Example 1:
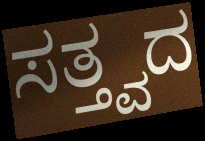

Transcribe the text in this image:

ಸತ್ತ್ವದ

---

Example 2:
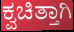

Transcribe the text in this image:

ಕ್ವಚಿತ್ತಾಗಿ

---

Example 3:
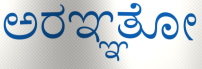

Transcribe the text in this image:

ಅರಞ್ಞತೋ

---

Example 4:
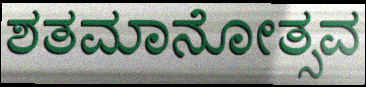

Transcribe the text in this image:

ಶತಮಾನೋತ್ಸವ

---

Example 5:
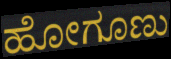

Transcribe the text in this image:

ಹೋಗೂಣು